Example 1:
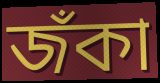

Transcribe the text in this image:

জঁকা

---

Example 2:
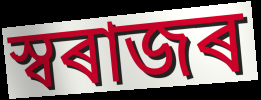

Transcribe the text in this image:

স্বৰাজৰ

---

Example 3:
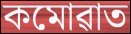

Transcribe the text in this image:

কমোৱাত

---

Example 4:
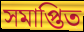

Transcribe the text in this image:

সমাপ্তিত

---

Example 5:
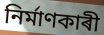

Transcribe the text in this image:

নিৰ্মাণকাৰী